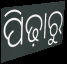
ପିଢ଼ାରୁ